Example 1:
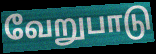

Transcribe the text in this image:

வேறுபாடு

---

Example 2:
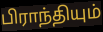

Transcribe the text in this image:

பிராந்தியும்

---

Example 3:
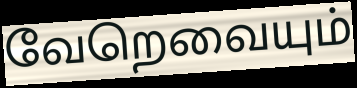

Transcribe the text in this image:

வேறெவையும்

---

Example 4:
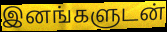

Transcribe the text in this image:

இனங்களுடன்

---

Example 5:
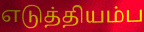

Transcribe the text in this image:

எடுத்தியம்ப